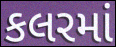
કલરમાં